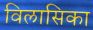
विलासिका